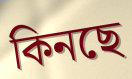
কিনছে